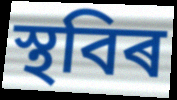
স্থবিৰ